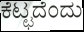
ಕೆಟ್ಟದೆಂದು